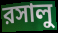
রসালু